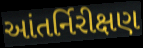
આંતર્નિરીક્ષણ